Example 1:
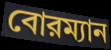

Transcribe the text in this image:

বোরম্যান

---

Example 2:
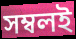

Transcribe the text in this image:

সম্বলই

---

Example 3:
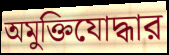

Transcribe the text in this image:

অমুক্তিযোদ্ধার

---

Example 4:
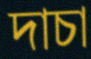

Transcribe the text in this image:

দাচা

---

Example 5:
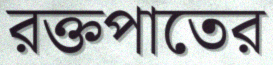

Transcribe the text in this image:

রক্তপাতের